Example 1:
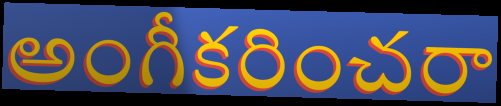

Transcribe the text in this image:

అంగీకరించరా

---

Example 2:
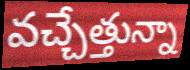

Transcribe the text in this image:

వచ్చేత్తున్నా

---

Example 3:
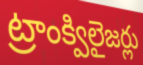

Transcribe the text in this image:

ట్రాంక్విలైజర్లు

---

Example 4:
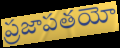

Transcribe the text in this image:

ప్రజాపతయో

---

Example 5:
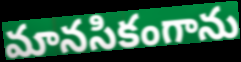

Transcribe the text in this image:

మానసికంగాను